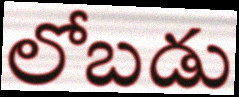
లోబడు